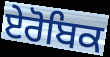
ਏਰੋਬਿਕ